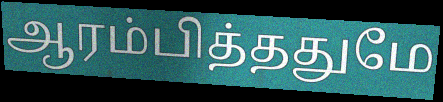
ஆரம்பித்ததுமே